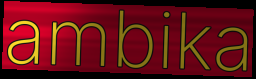
ambika